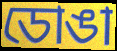
ডোঙা